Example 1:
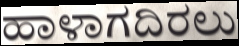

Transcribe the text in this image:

ಹಾಳಾಗದಿರಲು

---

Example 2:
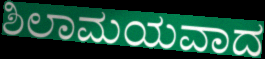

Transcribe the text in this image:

ಶಿಲಾಮಯವಾದ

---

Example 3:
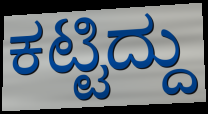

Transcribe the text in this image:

ಕಟ್ಟಿದ್ದು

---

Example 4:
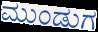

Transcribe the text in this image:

ಮುಂಡುಗ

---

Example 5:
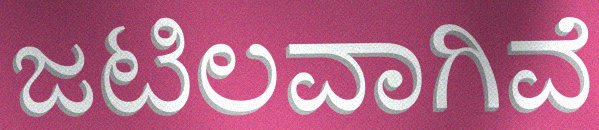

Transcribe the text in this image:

ಜಟಿಲವಾಗಿವೆ